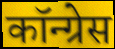
कॉन्ग्रेस